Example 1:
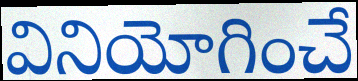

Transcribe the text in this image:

వినియోగించే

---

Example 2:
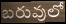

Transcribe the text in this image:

బరువులో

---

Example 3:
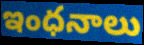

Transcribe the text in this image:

ఇంధనాలు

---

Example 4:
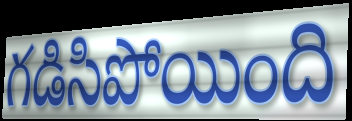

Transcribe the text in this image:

గడిసిపోయింది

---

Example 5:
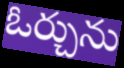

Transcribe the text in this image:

ఓర్చును